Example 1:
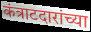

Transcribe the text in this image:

कंत्राटदारांच्या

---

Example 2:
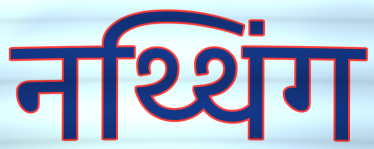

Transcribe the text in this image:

नथ्थिंग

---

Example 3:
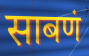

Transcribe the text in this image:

साबणं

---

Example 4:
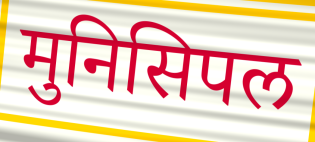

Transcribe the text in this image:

मुनिसिपल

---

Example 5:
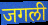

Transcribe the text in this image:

जगली